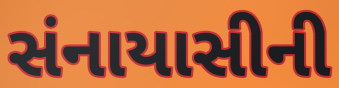
સંનાયાસીની